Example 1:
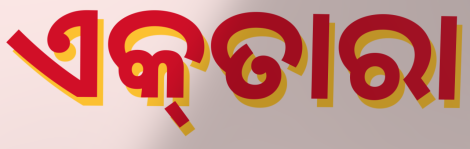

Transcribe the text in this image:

ଏକ୍‌ତାରା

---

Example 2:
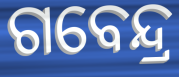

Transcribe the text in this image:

ଗବେନ୍ଦ୍ର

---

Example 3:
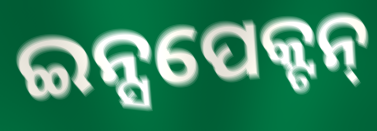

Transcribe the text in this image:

ଇନ୍ସପେକ୍ଟନ୍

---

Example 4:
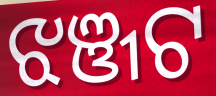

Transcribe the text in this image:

ଝଞ୍ଜଟ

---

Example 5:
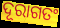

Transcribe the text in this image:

ଦୂରାଗତଂ